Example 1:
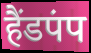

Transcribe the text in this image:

हैंडपंप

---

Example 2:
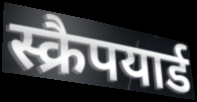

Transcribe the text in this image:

स्क्रैपयार्ड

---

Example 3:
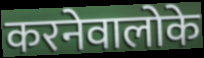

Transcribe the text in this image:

करनेवालोके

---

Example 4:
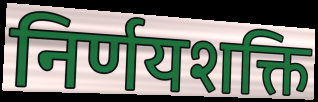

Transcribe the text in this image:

निर्णयशक्ति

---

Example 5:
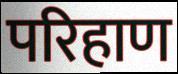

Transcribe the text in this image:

परिहाण